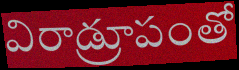
విరాడ్రూపంతో